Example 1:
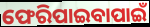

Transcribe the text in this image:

ଫେରିପାଇବାପାଇଁ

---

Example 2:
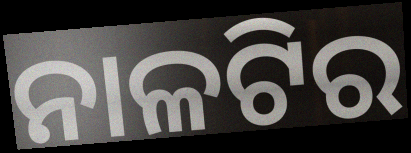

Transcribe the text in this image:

ନାଳଟିର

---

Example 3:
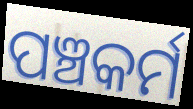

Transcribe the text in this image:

ପଞ୍ଚକର୍ମ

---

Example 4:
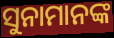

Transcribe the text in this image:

ସୁନାମାନଙ୍କ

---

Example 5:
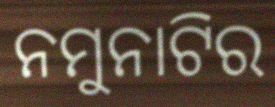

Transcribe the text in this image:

ନମୁନାଟିର